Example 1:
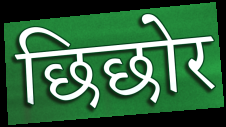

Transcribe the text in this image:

छिछोर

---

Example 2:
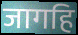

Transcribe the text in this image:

जागहि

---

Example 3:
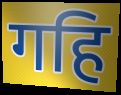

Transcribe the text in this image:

गहि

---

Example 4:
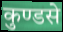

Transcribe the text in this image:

कुण्डसे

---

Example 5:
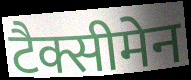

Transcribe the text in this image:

टैक्सीमेन